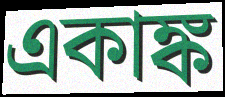
একাঙ্ক